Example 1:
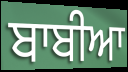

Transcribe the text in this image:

ਬਾਬੀਆ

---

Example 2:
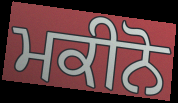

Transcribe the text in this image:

ਮਕੀਨੋ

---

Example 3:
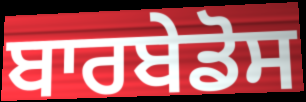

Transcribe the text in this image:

ਬਾਰਬੇਡੋਸ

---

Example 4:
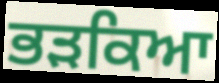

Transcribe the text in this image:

ਭੜਕਿਆ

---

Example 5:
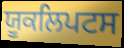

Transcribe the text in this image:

ਯੂਕਲਿਪਟਸ